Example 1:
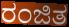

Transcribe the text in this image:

ರಂಜಿತ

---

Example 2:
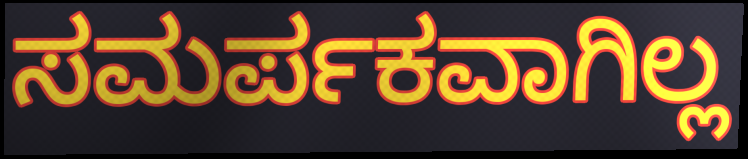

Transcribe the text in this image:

ಸಮರ್ಪಕವಾಗಿಲ್ಲ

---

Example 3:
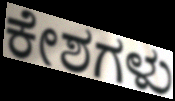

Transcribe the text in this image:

ಕೇಶಗಳು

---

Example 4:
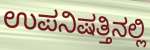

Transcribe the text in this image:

ಉಪನಿಷತ್ತಿನಲ್ಲಿ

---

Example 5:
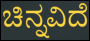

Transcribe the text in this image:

ಚಿನ್ನವಿದೆ